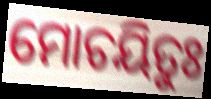
ମୋଚୟିତୁଃ